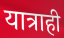
यात्राही